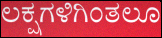
ಲಕ್ಷಗಳಿಗಿಂತಲೂ